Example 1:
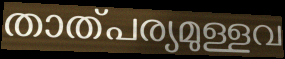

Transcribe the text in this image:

താത്പര്യമുള്ളവ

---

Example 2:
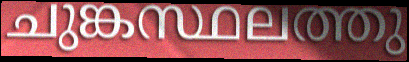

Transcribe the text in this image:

ചുങ്കസ്ഥലത്തു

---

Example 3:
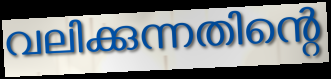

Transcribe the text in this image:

വലിക്കുന്നതിന്റെ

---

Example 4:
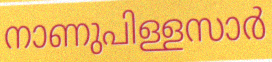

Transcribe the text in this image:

നാണുപിള്ളസാർ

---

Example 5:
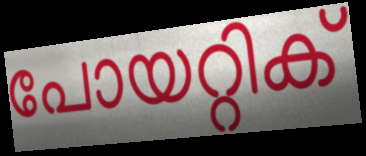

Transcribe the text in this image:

പോയറ്റിക്